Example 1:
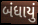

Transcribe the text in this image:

બંધાયું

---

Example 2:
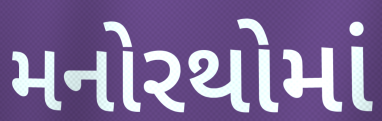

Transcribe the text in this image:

મનોરથોમાં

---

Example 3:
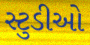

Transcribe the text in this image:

સ્ટુડીઓ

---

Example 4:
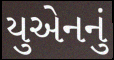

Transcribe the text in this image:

યુએનનું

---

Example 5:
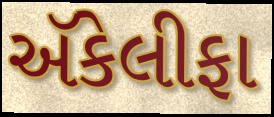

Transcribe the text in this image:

ઍકેલીફા